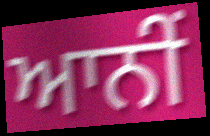
ਆਨੀਂ